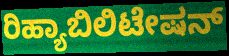
ರಿಹ್ಯಾಬಿಲಿಟೇಷನ್